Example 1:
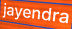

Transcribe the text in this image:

jayendra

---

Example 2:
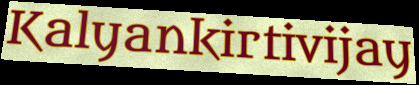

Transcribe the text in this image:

Kalyankirtivijay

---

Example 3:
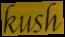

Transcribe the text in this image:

kush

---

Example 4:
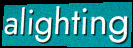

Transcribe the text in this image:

alighting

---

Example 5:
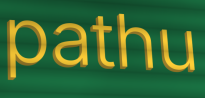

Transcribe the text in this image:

pathu